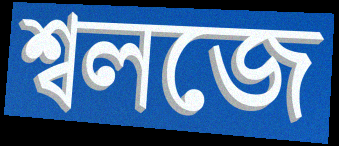
শ্বলজে